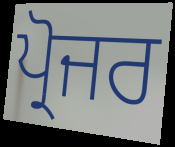
ਪ੍ਰੋਜਰ